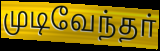
முடிவேந்தர்